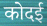
कोदई